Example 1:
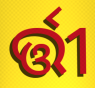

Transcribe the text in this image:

ର୍ତ୍ତୀ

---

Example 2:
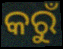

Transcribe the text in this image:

କରୁଁ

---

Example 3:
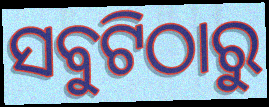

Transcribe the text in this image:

ସବୁଟିଠାରୁ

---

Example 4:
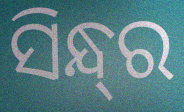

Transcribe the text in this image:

ସିନ୍ଧ୍‌ର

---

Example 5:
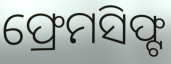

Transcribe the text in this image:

ଫ୍ରେମସିଫ୍ଟ